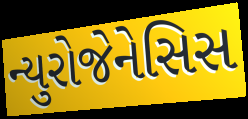
ન્યુરોજેનેસિસ